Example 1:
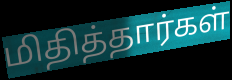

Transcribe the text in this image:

மிதித்தார்கள்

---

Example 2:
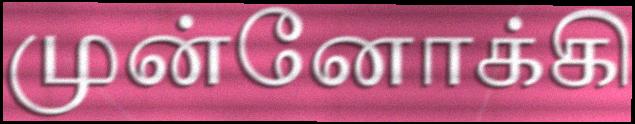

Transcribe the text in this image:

முன்னோக்கி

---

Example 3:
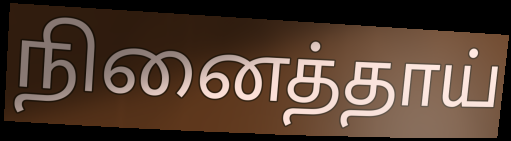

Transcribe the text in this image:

நினைத்தாய்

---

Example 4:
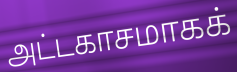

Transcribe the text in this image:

அட்டகாசமாகக்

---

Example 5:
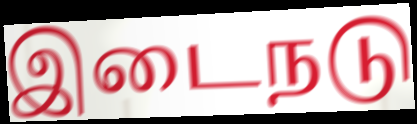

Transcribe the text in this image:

இடைநடு